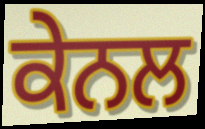
ਕੇਨਲ